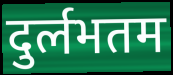
दुर्लभतम